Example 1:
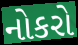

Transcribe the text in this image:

નોકરો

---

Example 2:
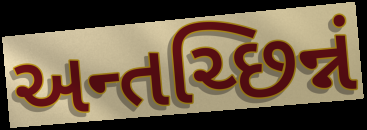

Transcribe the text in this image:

અન્તચ્છિન્નં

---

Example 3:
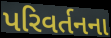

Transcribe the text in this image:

પરિવર્તનના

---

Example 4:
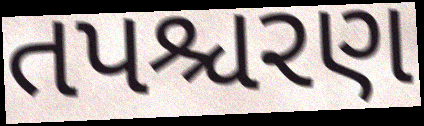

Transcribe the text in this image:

તપશ્ચરણ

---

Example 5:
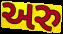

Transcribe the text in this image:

અરુ